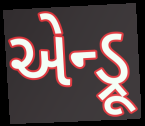
એન્ડ્રૂ